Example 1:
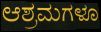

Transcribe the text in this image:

ಆಶ್ರಮಗಳೂ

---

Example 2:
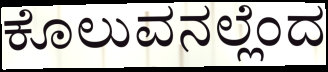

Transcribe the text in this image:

ಕೊಲುವನಲ್ಲೆಂದ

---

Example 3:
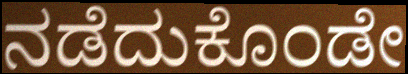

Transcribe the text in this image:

ನಡೆದುಕೊಂಡೇ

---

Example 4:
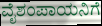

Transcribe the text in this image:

ವೈಶಂಪಾಯನಿಗೆ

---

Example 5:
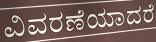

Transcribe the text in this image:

ವಿವರಣೆಯಾದರೆ